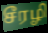
சீரழி